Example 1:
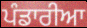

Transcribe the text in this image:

ਪੰਡਾਰੀਆ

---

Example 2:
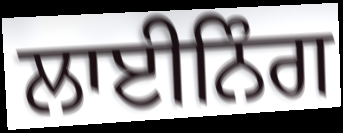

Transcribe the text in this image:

ਲਾਈਨਿੰਗ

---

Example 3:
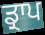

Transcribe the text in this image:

ਡ੍ਰਾਪ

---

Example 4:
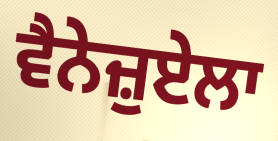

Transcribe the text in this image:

ਵੈਨੇਜ਼ੁਏਲਾ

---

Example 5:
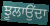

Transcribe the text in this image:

ਝੂਲਾਉਂਦਾ